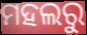
ମହଲରୁ